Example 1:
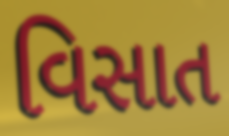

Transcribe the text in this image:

વિસાત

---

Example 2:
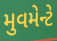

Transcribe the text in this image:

મુવમેન્ટે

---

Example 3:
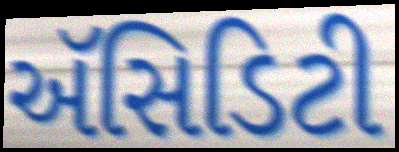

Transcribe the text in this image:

ઍસિડિટી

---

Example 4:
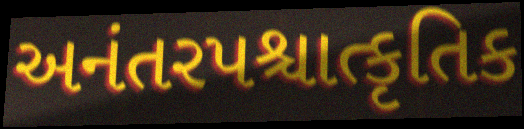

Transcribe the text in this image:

અનંતરપશ્ચાત્કૃતિક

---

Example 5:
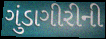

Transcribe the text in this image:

ગુંડાગીરીની